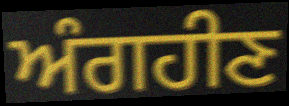
ਅੰਗਹੀਣ